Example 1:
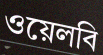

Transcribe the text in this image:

ওয়েলবি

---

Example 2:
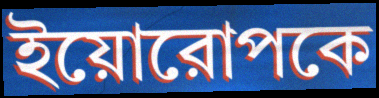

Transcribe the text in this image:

ইয়োরোপকে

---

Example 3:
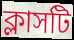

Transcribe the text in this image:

ক্লাসটি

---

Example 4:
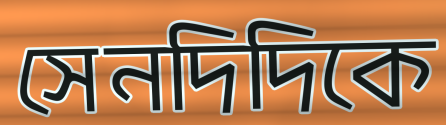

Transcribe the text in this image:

সেনদিদিকে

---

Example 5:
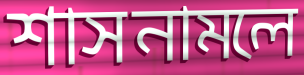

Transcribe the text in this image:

শাসনামলে